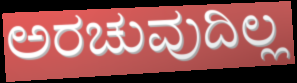
ಅರಚುವುದಿಲ್ಲ